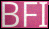
BFI